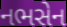
નભસેન